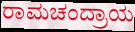
ರಾಮಚಂದ್ರಾಯ